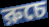
রুচে